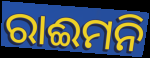
ରାଈମନି